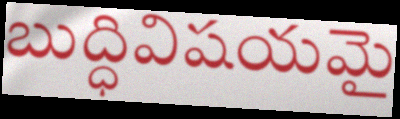
బుద్ధివిషయమై